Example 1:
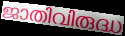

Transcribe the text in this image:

ജാതിവിരുദ്ധ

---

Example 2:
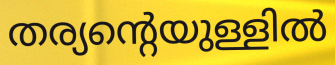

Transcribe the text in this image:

തര്യന്റെയുള്ളിൽ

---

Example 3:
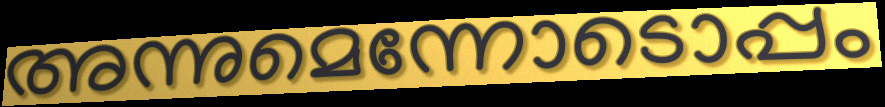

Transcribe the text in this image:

അന്നുമെന്നോടൊപ്പം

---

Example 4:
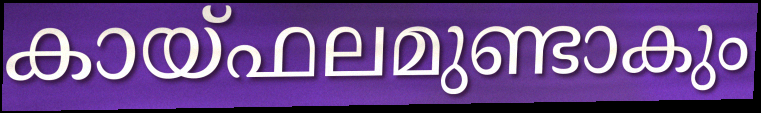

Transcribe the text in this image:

കായ്ഫലമുണ്ടാകും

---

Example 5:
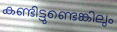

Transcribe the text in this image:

കണ്ടിട്ടുണ്ടെങ്കിലും